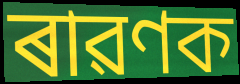
ৰাৱণক